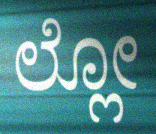
ಲ್ಲೋ